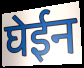
घेईन